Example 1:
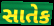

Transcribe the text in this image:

સાતેક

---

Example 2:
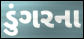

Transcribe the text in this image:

ડુંગરના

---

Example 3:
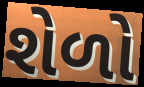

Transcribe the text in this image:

શેળો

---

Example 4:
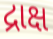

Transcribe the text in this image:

દ્રાક્ષ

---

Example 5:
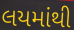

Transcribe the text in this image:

લયમાંથી